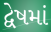
દ્વેષમાં